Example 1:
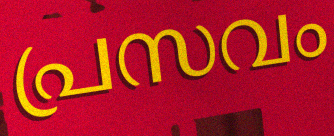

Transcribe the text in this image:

പ്രസവം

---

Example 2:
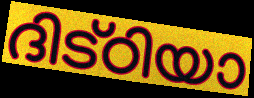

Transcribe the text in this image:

ദിട്ഠിയാ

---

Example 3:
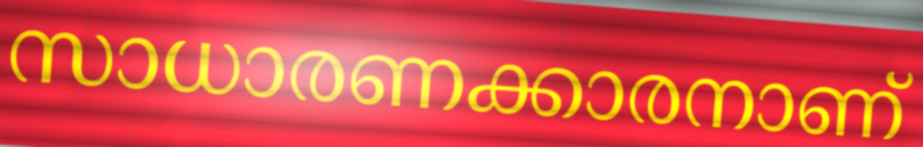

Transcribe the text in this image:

സാധാരണക്കാരനാണ്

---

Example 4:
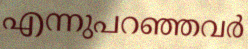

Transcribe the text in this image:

എന്നുപറഞ്ഞവർ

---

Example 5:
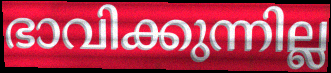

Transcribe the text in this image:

ഭാവിക്കുന്നില്ല